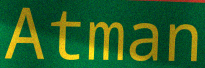
Atman